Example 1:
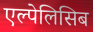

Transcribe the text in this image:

एल्पेलिसिब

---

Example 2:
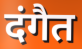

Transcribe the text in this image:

दंगैत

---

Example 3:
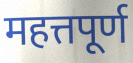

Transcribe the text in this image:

महत्तपूर्ण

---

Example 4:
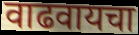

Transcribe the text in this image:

वाढवायचा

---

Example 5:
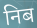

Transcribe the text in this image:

निब